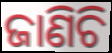
ଜାଣିଚି